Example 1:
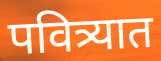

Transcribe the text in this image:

पवित्र्यात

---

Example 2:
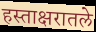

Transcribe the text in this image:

हस्ताक्षरातले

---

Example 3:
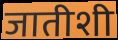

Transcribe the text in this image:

जातीशी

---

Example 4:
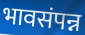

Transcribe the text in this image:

भावसंपन्न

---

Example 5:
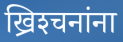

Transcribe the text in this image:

ख्रिश्‍चनांना